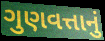
ગુણવત્તાનું